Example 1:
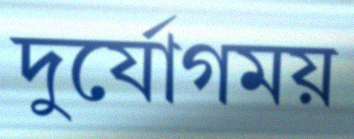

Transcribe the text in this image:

দুর্যোগময়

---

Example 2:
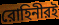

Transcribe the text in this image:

রোহিনীরই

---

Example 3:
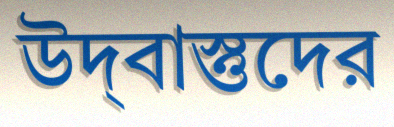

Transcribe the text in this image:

উদ্‌বাস্তুদের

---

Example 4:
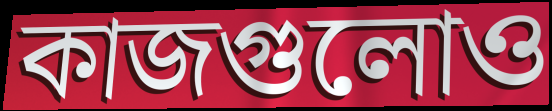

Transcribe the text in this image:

কাজগুলোও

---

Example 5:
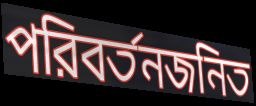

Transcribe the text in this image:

পরিবর্তনজনিত